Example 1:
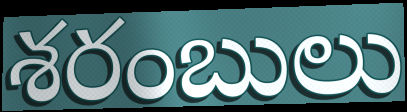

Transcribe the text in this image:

శరంబులు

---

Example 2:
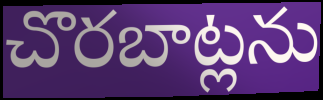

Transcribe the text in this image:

చొరబాట్లను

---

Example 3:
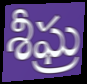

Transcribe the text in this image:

శీఘ్ర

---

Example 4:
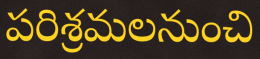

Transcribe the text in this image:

పరిశ్రమలనుంచి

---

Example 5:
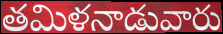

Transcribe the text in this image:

తమిళనాడువారు